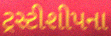
ટ્રસ્ટીશીપના